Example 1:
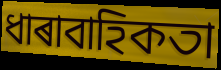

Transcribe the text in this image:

ধাৰাবাহিকতা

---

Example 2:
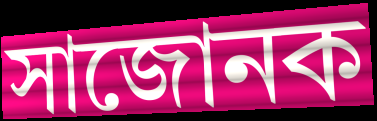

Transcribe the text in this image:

সাজোনক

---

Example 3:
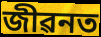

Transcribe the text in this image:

জীৱনত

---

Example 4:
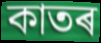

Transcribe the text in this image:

কাতৰ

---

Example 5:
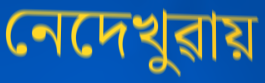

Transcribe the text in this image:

নেদেখুৱায়